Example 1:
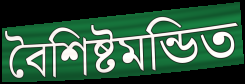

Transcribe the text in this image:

বৈশিষ্টমন্ডিত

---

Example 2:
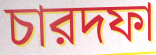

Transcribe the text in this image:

চারদফা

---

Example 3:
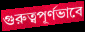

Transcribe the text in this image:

গুরুত্বপূর্ণভাবে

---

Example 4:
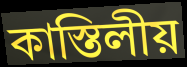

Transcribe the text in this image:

কাস্তিলীয়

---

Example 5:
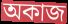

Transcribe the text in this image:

অকাজ